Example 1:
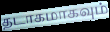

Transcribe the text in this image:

தடாகமாகவும்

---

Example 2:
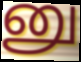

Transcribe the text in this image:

னு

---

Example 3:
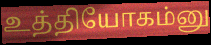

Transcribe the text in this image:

உத்தியோகம்னு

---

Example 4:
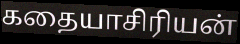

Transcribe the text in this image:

கதையாசிரியன்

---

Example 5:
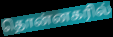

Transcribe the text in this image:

தொன்னகரில்